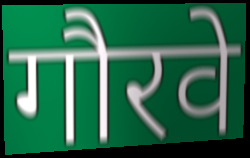
गौरवे